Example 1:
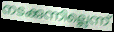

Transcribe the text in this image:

നടക്കുന്നില്ലെന്ന്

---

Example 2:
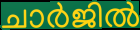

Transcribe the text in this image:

ചാർജിൽ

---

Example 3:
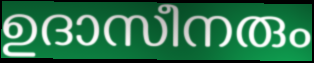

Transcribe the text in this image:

ഉദാസീനരും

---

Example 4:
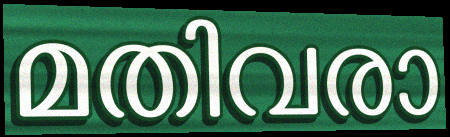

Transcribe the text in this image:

മതിവരാ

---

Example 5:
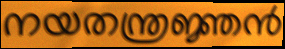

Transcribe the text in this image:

നയതന്ത്രജ്ഞൻ